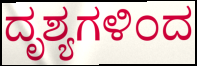
ದೃಶ್ಯಗಳಿಂದ